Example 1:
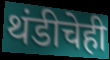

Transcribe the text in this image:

थंडीचेही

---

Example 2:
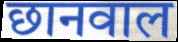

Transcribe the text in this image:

छानवाल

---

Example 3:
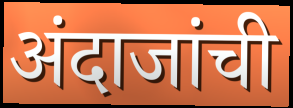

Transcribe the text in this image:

अंदाजांची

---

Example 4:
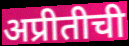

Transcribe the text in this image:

अप्रीतीची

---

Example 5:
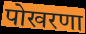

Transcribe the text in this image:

पोखरणा